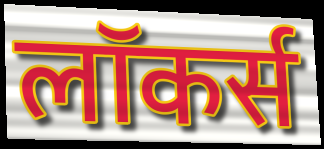
लॉकर्स